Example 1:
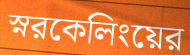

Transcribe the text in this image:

স্নরকেলিংয়ের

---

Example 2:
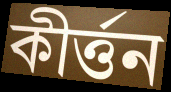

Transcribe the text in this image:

কীর্ত্তন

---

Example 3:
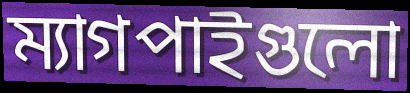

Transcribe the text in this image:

ম্যাগপাইগুলো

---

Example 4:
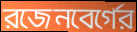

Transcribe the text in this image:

রজেনবের্গের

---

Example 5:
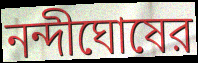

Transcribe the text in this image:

নন্দীঘোষের